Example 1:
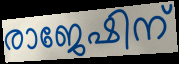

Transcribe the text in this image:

രാജേഷിന്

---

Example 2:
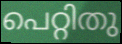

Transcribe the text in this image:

പെറ്റിതു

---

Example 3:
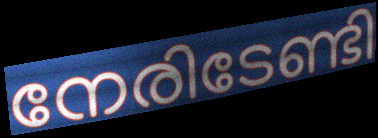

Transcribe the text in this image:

നേരിടേണ്ടി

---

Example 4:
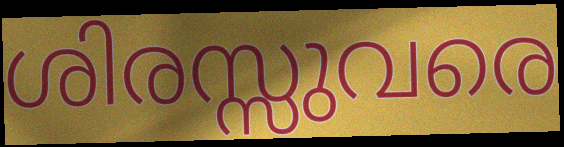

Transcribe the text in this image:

ശിരസ്സുവരെ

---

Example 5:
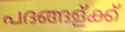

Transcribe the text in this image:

പദങ്ങള്ക്ക്